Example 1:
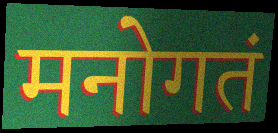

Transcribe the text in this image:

मनोगतं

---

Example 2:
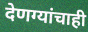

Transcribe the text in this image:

देणग्यांचाही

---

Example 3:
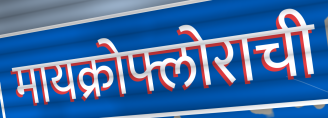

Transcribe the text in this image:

मायक्रोफ्लोराची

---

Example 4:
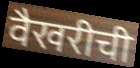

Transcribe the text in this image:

वैखरीची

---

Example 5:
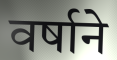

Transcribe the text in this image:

वर्षाने